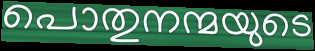
പൊതുനന്മയുടെ